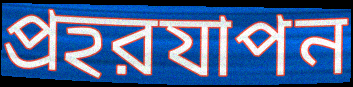
প্রহরযাপন